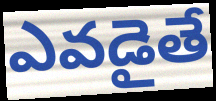
ఎవడైతే